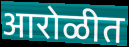
आरोळीत